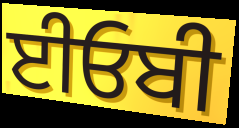
ਈਓਬੀ